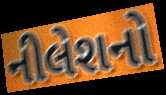
નીલેશનો